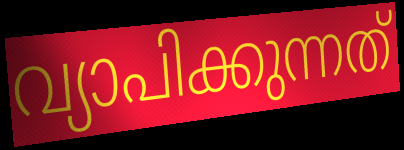
വ്യാപിക്കുന്നത്